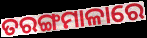
ତରଙ୍ଗମାଳାରେ